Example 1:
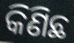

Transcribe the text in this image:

କିଣିଛ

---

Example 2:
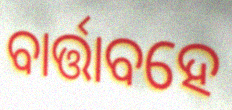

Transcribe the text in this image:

ବାର୍ତ୍ତାବହେ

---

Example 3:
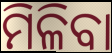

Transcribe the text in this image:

ମିଳିବା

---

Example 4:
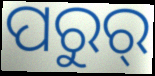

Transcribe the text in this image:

ପରୁର୍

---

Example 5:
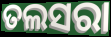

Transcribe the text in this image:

ତଲସରା